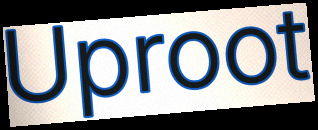
Uproot